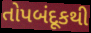
તોપબંદૂકથી